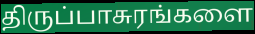
திருப்பாசுரங்களை